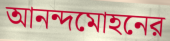
আনন্দমোহনের